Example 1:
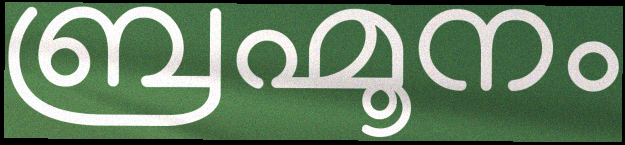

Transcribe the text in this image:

ബ്രഹ്മൂനം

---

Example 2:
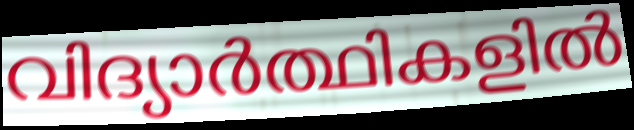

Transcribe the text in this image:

വിദ്യാർത്ഥികളിൽ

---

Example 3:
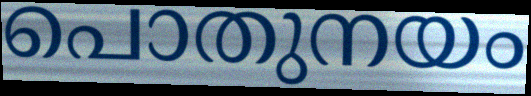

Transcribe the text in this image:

പൊതുനയം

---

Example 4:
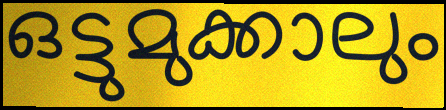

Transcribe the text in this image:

ഒട്ടുമുക്കാലും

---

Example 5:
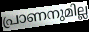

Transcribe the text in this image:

പ്രാണനുമില്ല